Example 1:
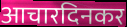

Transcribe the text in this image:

आचारदिनकर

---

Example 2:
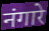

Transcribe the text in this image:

नंगारे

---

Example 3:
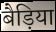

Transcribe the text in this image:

बैड़िया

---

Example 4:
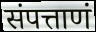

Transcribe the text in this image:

संपत्ताणं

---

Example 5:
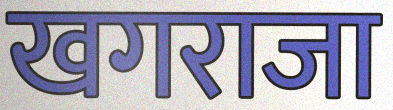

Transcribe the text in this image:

खगराजा